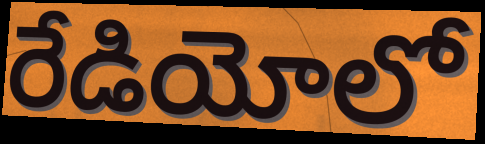
రేడియోలో